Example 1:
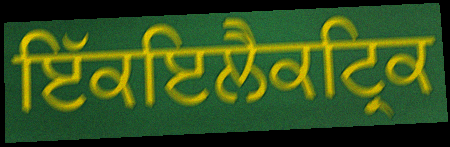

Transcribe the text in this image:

ਇੱਕਇਲੈਕਟ੍ਰਿਕ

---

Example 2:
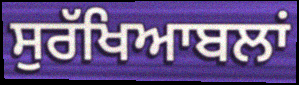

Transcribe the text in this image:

ਸੁਰੱਖਿਆਬਲਾਂ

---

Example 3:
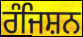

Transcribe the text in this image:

ਰੰਜਿਸ਼ਨ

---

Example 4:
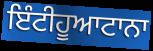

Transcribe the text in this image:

ਇੰਟੀਹੂਆਟਾਨਾ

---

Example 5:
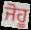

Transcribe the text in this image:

ਜੋਹੂ